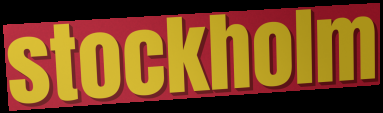
stockholm